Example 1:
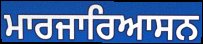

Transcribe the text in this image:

ਮਾਰਜਾਰਿਆਸਨ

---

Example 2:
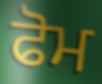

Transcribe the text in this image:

ਫੋਮ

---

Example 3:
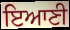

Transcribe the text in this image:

ਇਆਣੀ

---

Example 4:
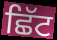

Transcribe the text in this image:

ਛਿੱਟ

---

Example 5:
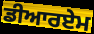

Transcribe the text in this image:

ਡੀਆਰਏਮ